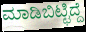
ಮಾಡಿಬಿಟ್ಟಿದ್ದೆ